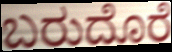
ಬರುದೊರೆ